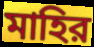
মাহির